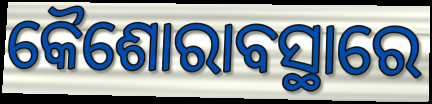
କୈଶୋରାବସ୍ଥାରେ